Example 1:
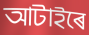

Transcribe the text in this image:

আটাইৰে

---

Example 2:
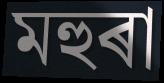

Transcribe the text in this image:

মহুৰা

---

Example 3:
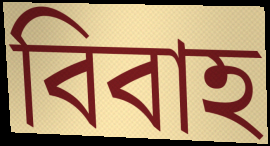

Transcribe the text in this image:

বিবাহ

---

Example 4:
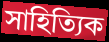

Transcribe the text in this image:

সাহিত্যিক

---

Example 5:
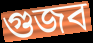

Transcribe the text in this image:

গুজব